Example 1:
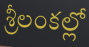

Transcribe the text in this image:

శ్రీలంకల్లో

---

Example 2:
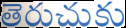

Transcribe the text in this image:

తెరుచుకు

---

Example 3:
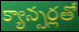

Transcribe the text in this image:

క్యాన్సర్లతో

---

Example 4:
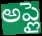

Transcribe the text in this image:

అప్లై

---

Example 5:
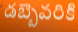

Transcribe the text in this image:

డబ్బెవరికి